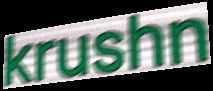
krushn